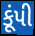
કૂંપી